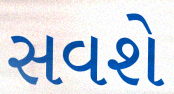
સવશે